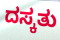
ದಸ್ಕತು